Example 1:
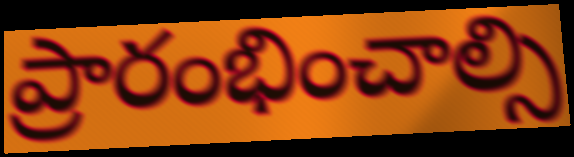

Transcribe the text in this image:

ప్రారంభించాల్సి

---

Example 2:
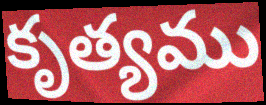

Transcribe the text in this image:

కృత్యము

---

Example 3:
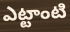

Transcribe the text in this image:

ఎట్టాంటి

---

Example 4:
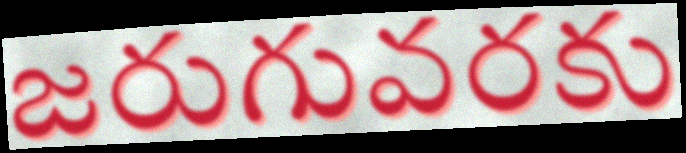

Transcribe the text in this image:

జరుగువరకు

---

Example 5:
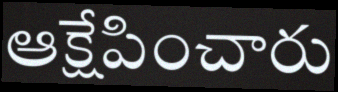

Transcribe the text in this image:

ఆక్షేపించారు